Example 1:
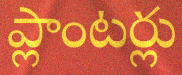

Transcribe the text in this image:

ప్లాంటర్లు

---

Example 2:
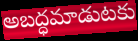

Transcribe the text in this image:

అబద్ధమాడుటకు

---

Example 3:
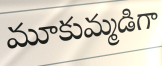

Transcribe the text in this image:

మూకుమ్మడిగా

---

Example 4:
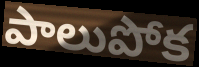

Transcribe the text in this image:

పాలుపోక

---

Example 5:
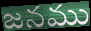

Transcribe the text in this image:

జనము